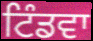
ਟਿੰਡਵਾ